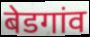
बेडगांव